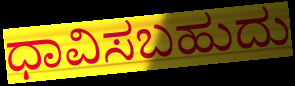
ಧಾವಿಸಬಹುದು